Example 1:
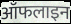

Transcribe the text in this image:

ऑफलाइन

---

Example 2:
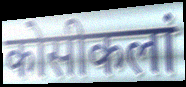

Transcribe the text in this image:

कोसीकलां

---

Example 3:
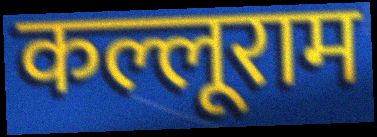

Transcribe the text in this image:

कल्लूराम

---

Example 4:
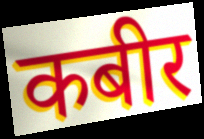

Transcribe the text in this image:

कबीर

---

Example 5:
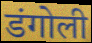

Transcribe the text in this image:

डंगोली